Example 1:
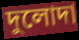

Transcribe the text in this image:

দুলোদা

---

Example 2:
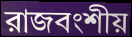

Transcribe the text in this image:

রাজবংশীয়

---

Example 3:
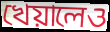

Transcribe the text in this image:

খেয়ালেও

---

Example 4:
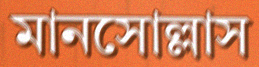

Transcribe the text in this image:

মানসোল্লাস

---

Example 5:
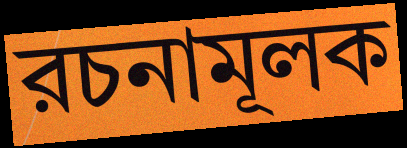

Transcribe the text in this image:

রচনামূলক